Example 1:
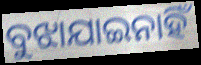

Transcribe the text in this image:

ବୁଝାଯାଇନାହିଁ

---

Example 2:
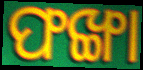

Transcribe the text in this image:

ଫଙ୍ଖା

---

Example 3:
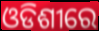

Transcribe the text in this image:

ଓଡିଶୀରେ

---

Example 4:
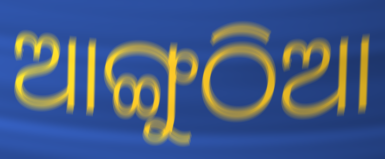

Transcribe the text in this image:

ଆଙ୍ଗୁଠିଆ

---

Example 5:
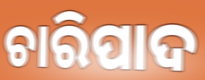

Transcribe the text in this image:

ଚାରିପାଦ